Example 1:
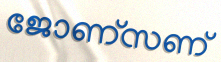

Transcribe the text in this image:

ജോണ്സണ്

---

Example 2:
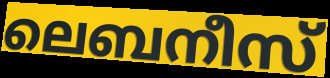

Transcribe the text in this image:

ലെബനീസ്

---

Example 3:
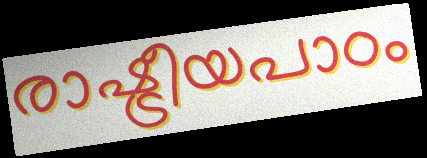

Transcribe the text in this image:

രാഷ്ട്രീയപാഠം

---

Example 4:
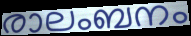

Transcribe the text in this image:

രാലംബനം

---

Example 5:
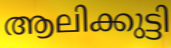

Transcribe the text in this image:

ആലിക്കുട്ടി